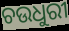
ଚଉଧୁରୀ